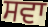
ਸਵਾ